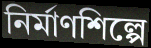
নির্মাণশিল্পে